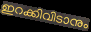
ഇറക്കിവിടാനും